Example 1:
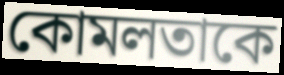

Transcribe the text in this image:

কোমলতাকে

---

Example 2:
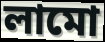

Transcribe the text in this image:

লামো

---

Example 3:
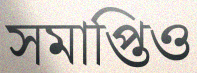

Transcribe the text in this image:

সমাপ্তিও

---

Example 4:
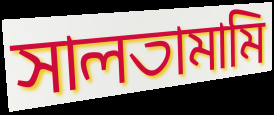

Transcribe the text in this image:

সালতামামি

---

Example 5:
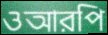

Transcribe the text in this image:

ওআরপি